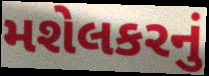
મશેલકરનું